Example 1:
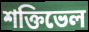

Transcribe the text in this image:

শক্তিভেল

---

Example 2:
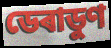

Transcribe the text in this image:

ডেৰাডুণ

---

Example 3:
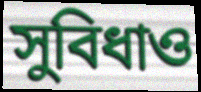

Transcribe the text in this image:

সুবিধাও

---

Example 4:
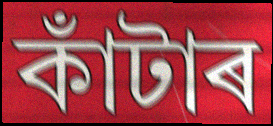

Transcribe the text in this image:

কাঁটাৰ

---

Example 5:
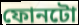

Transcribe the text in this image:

ফোনটো